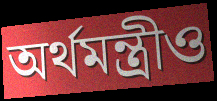
অর্থমন্ত্রীও